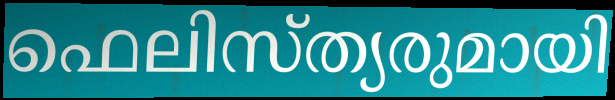
ഫെലിസ്ത്യരുമായി